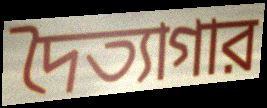
দৈত্যাগার